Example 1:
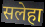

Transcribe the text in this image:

सलेहा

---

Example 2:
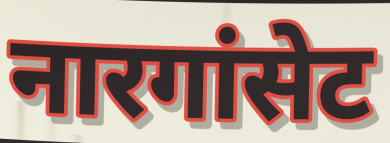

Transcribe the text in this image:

नारगांसेट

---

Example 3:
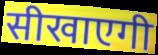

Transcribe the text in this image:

सीखाएगी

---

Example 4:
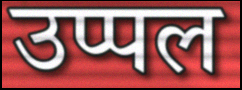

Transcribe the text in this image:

उप्पल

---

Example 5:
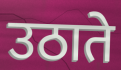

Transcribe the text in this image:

उठाते